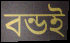
বন্ডই